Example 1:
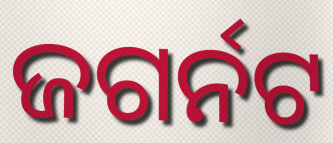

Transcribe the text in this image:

ଜଗର୍ନଟ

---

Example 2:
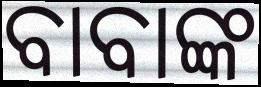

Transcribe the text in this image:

ବାବାଙ୍କ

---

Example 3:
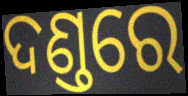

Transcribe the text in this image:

ଦଣ୍ଡରେ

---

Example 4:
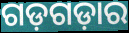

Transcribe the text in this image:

ଗଡ଼ଗଡ଼ାର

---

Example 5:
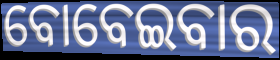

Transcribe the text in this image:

ବୋବେଇବାର